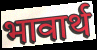
भावार्थ